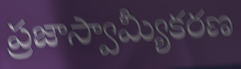
ప్రజాస్వామ్యీకరణ